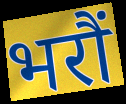
भरौं